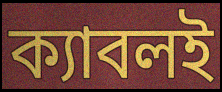
ক্যাবলই